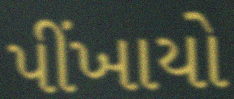
પીંખાયો